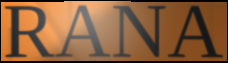
RANA